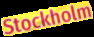
Stockholm